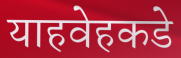
याहवेहकडे